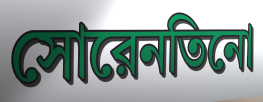
সোরেনতিনো